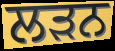
ਲੜਨ